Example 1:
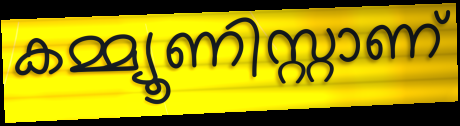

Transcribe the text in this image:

കമ്മ്യൂണിസ്റ്റാണ്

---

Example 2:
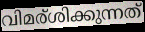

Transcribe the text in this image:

വിമര്ശിക്കുന്നത്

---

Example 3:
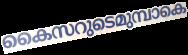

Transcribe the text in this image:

കൈസറുടെമുമ്പാകെ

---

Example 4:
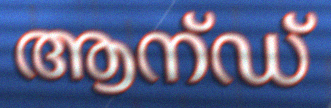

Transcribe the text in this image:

ആന്ഡ്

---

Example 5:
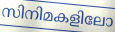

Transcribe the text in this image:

സിനിമകളിലോ